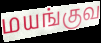
மயங்குவ